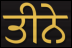
ਤੀਨੇ